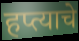
हप्त्याचे